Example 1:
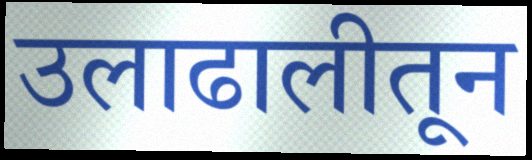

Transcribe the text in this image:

उलाढालीतून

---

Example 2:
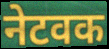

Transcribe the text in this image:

नेटवक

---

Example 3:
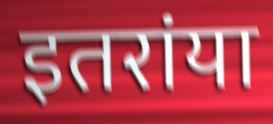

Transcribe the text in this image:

इतरांया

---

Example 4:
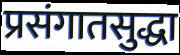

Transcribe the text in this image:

प्रसंगातसुद्धा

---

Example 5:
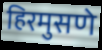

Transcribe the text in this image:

हिरमुसणे